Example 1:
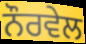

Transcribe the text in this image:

ਨੌਰਵੇਲ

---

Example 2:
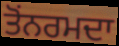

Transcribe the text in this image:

ਤੋਂਨਰਮਦਾ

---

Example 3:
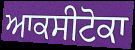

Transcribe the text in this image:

ਆਕਸੀਟੋਕਾ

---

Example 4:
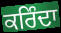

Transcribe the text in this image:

ਕਰਿੰਦਾ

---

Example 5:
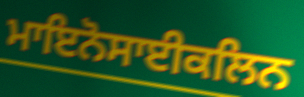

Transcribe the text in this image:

ਮਾਇਨੋਸਾਈਕਲਿਨ